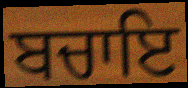
ਬਚਾਇ